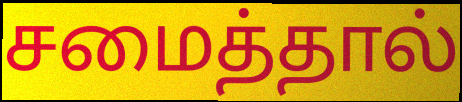
சமைத்தால்